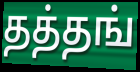
தத்தங்